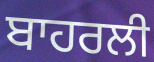
ਬਾਹਰਲੀ